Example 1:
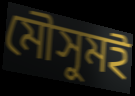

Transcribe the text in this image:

মৌসুমই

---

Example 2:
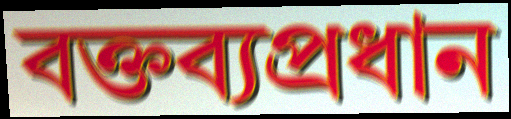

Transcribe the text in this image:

বক্তব্যপ্রধান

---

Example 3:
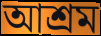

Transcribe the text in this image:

আশ্রম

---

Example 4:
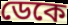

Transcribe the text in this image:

ডেকে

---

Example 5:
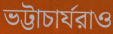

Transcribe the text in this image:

ভট্টাচার্যরাও